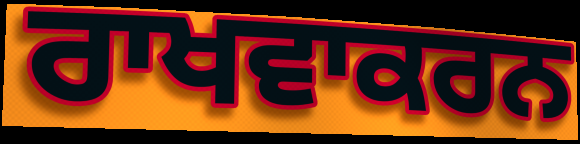
ਰਾਖਵਾਕਰਨ